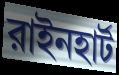
রাইনহার্ট